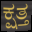
ಕ್ಷತ್ತ